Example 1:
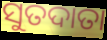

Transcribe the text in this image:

ସୁତଦାତା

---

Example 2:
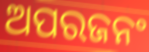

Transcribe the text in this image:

ଅପରଜନଂ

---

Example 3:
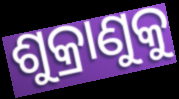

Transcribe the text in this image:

ଶୁକ୍ରାଣୁକୁ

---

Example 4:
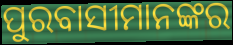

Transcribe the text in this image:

ପୁରବାସୀମାନଙ୍କର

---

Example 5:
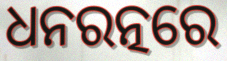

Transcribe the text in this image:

ଧନରତ୍ନରେ